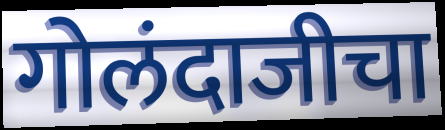
गोलंदाजीचा